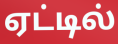
ஏட்டில்